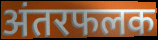
अंतरफलक